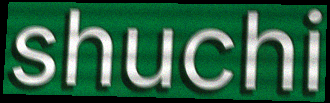
shuchi